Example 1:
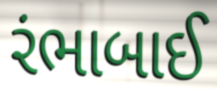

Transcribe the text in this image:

રંભાબાઈ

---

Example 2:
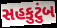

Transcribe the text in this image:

સહકુટુંબ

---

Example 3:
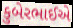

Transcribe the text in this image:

કુબેરભાઈએ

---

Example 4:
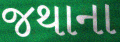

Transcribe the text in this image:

જથાના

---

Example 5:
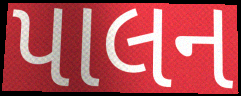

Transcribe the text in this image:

પાલન